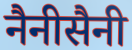
नैनीसैनी